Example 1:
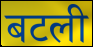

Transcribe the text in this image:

बटली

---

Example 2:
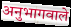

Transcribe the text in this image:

अनुभागवाले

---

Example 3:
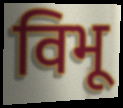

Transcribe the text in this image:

विभू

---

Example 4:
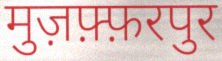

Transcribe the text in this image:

मुज़फ़्फ़रपुर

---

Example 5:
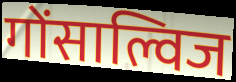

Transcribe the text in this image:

गोंसाल्विज